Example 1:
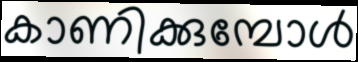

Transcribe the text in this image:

കാണിക്കുമ്പോൾ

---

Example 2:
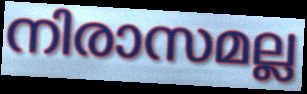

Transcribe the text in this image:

നിരാസമല്ല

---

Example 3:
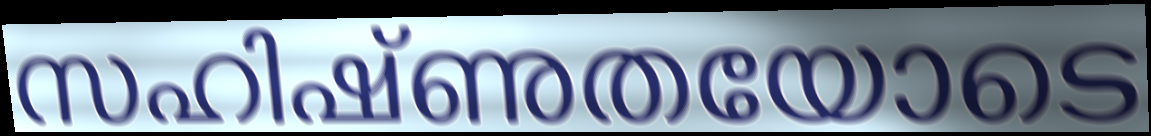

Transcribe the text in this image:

സഹിഷ്‌ണുതയോടെ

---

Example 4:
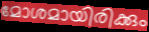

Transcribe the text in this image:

മോശമായിരിക്കും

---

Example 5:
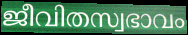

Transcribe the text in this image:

ജീവിതസ്വഭാവം